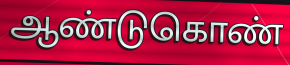
ஆண்டுகொண்